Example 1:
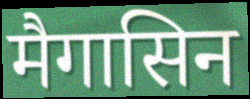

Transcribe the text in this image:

मैगासिन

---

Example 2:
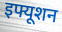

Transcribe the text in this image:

इफ्यूशन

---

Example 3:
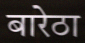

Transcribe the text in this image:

बारेठा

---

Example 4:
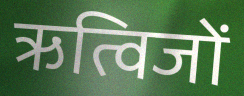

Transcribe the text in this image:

ऋत्विजों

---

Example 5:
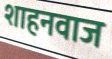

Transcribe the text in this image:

शाहनवाज